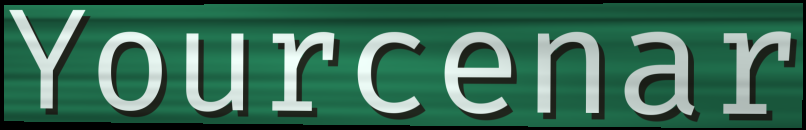
Yourcenar